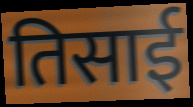
तिसाई